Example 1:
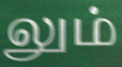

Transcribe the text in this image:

லும்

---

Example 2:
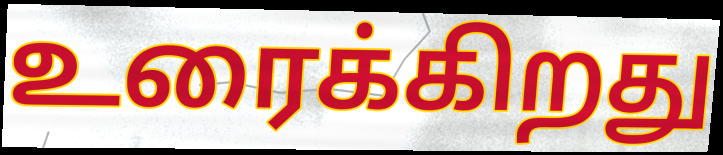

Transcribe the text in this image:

உரைக்கிறது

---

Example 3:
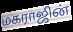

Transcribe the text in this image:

மகராஜின்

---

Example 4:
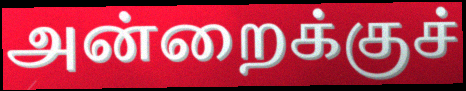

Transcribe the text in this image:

அன்றைக்குச்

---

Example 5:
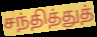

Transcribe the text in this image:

சந்தித்துத்